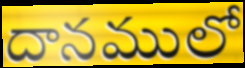
దానములో